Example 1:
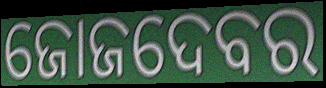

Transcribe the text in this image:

ଜୋଜଦେବର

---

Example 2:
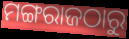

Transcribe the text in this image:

ମଙ୍ଗରାଜଠାରୁ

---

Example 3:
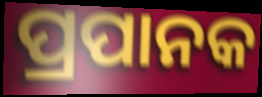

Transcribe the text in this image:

ପ୍ରପାନକ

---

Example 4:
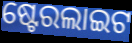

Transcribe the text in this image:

ଷ୍ଟେରଲାଇଟ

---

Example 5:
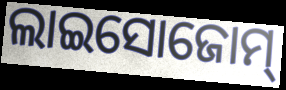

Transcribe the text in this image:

ଲାଇସୋଜୋମ୍